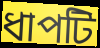
ধাপটি